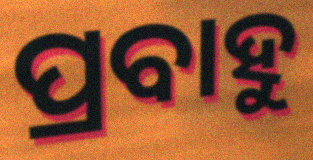
ପ୍ରବାହୁ